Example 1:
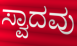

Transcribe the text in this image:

ಸ್ವಾದವು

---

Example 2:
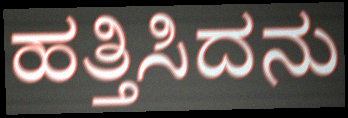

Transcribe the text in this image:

ಹತ್ತಿಸಿದನು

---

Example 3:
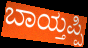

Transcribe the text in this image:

ಬಾಯ್ತಪ್ಪಿ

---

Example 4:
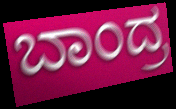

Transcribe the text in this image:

ಬಾಂದ್ರ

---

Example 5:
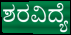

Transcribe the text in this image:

ಶರವಿದ್ಯೆ